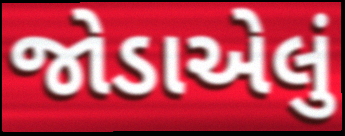
જોડાએલું